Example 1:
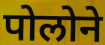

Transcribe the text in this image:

पोलोने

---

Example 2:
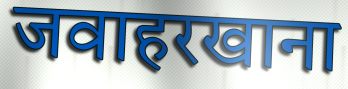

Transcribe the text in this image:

जवाहरखाना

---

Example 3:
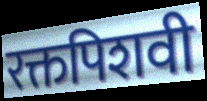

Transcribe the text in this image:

रक्तपिशवी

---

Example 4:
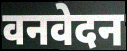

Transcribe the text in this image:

वनवेदन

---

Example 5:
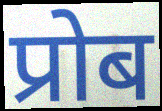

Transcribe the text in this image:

प्रोब